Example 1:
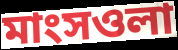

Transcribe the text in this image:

মাংসওলা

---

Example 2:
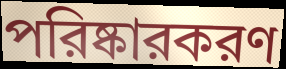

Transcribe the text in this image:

পরিষ্কারকরণ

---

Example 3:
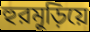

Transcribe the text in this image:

হুরমুড়িয়ে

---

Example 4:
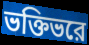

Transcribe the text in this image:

ভক্তিভরে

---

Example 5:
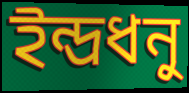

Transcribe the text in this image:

ইন্দ্রধনু